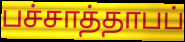
பச்சாத்தாபப்